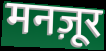
मनज़ूर